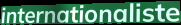
internationaliste